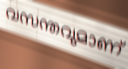
വസന്തവുമാണ്